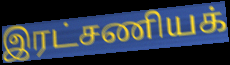
இரட்சணியக்